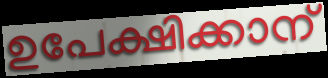
ഉപേക്ഷിക്കാന്